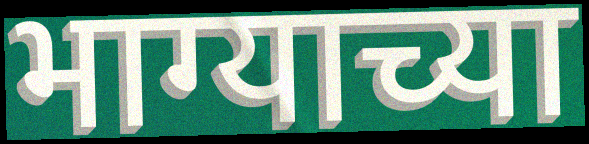
भाग्याच्या